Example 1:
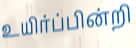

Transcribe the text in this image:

உயிர்ப்பின்றி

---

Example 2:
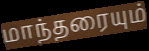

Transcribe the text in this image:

மாந்தரையும்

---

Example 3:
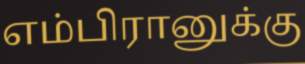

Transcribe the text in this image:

எம்பிரானுக்கு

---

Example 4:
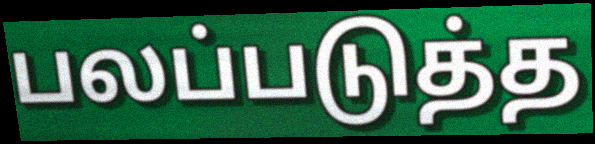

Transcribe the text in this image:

பலப்படுத்த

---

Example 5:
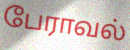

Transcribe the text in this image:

பேராவல்